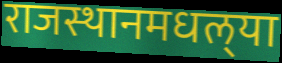
राजस्थानमधल्या